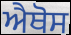
ਐਥੋਸ